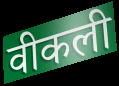
वीकली